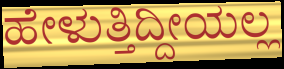
ಹೇಳುತ್ತಿದ್ದೀಯಲ್ಲ